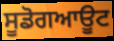
ਸੂਡੋਗਆਊਟ